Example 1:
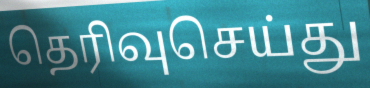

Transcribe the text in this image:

தெரிவுசெய்து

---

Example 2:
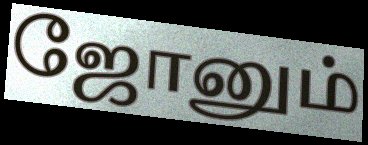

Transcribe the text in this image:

ஜோனும்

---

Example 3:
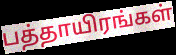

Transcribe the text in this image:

பத்தாயிரங்கள்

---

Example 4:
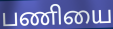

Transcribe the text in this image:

பணியை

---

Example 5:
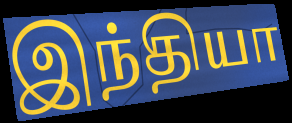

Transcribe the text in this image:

இந்தியா